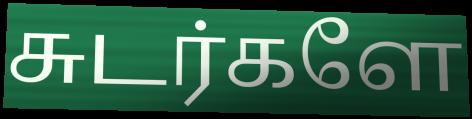
சுடர்களே